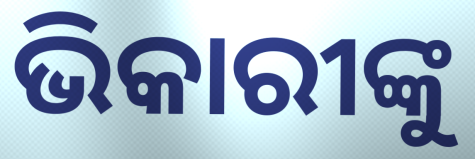
ଭିକାରୀଙ୍କୁ